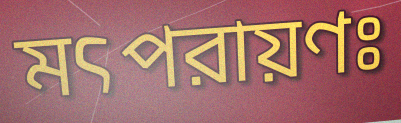
মৎপরায়ণঃ